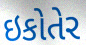
ઇકોતેર